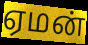
ஏமன்